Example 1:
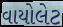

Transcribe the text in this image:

વાયોલેટ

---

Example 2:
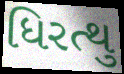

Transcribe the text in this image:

ધિરત્થુ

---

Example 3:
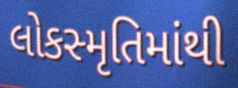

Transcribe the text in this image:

લોકસ્મૃતિમાંથી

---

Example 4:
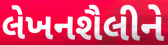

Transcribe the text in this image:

લેખનશૈલીને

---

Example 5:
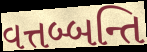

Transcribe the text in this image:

વત્તબ્બન્તિ